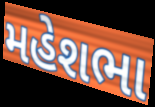
મહેશભા